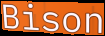
Bison